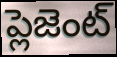
ప్లెజెంట్